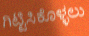
ಗಿಟ್ಟಿಸಿಕೊಳ್ಳಲು